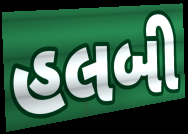
હલબી